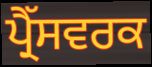
ਪ੍ਰੈੱਸਵਰਕ